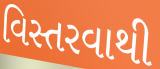
વિસ્તરવાથી